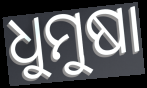
ଧୁମୁଷା